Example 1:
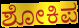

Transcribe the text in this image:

ಶೋಕಿಪ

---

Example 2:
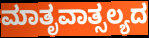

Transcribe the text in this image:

ಮಾತೃವಾತ್ಸಲ್ಯದ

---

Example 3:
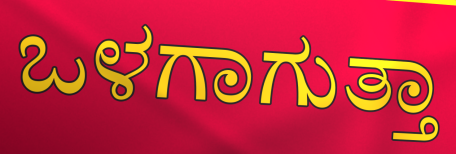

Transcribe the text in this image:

ಒಳಗಾಗುತ್ತಾ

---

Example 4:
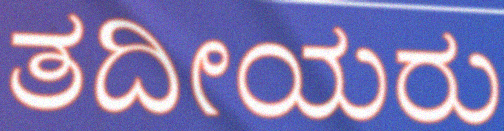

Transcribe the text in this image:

ತದೀಯರು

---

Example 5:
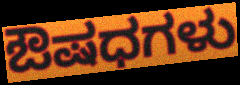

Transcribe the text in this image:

ಔಷಧಗಳು